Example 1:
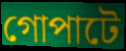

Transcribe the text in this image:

গোপাটে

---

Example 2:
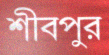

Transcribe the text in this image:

শীবপুর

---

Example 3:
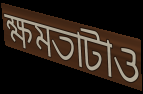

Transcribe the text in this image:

ক্ষমতাটাও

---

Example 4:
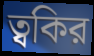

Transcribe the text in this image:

ত্বকির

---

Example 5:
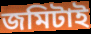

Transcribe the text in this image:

জমিটাই